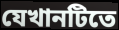
যেখানটিতে